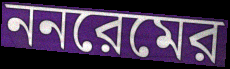
ননরেমের